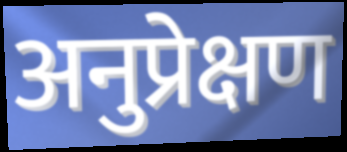
अनुप्रेक्षण